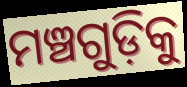
ମଞ୍ଚଗୁଡ଼ିକୁ